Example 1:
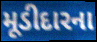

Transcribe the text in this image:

મૂડીદારના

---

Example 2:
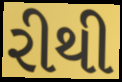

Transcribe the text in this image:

રીથી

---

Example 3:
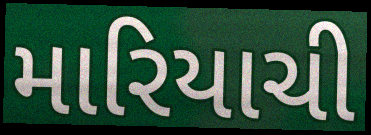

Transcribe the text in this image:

મારિયાચી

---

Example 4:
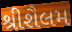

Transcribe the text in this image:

શ્રીશૈલમ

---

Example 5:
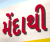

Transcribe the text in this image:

મેંદાથી